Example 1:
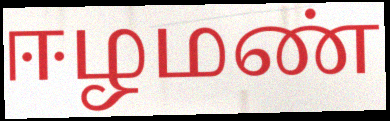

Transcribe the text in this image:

ஈழமண்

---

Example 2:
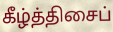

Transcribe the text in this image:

கீழ்த்திசைப்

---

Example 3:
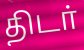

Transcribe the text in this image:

திடர்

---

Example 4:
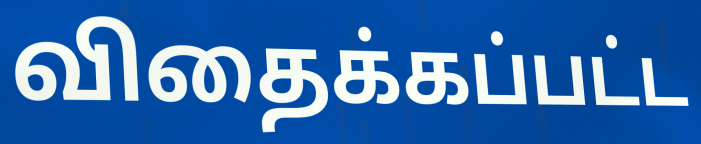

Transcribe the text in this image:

விதைக்கப்பட்ட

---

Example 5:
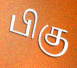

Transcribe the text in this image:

பிகு